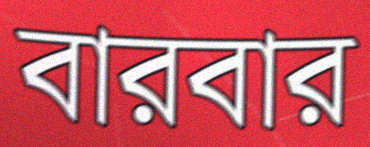
বারবার